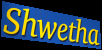
Shwetha